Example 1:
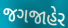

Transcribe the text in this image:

જગજાહેર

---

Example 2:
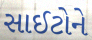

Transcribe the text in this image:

સાઈટોને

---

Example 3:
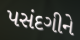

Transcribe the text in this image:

પસંદગીને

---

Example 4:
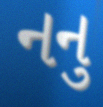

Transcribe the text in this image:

નનુ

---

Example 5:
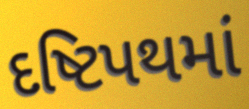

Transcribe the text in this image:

દષ્ટિપથમાં